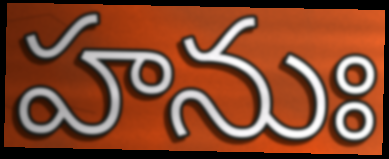
హనుః